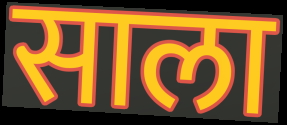
साला